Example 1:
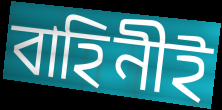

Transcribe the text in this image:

বাহিনীই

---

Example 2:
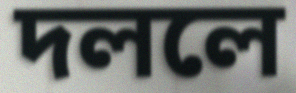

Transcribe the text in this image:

দললে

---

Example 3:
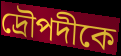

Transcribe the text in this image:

দ্রৌপদীকে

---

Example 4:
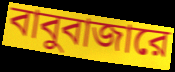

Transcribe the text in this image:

বাবুবাজারে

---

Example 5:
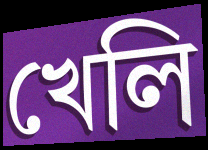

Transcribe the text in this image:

খেলি